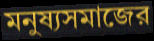
মনুষ্যসমাজের